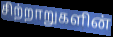
சிற்றாறுகளின்